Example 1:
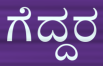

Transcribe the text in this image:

ಗೆದ್ದರ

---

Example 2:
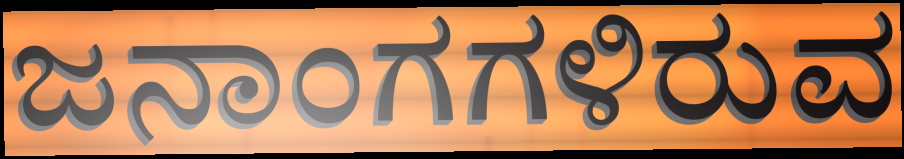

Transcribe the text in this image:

ಜನಾಂಗಗಳಿರುವ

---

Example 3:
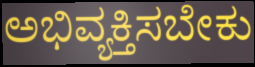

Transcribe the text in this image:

ಅಭಿವ್ಯಕ್ತಿಸಬೇಕು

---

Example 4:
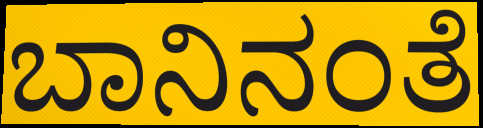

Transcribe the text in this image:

ಬಾನಿನಂತೆ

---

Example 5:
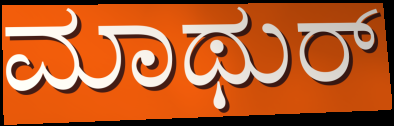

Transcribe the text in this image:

ಮಾಥುರ್